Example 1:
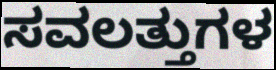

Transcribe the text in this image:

ಸವಲತ್ತುಗಳ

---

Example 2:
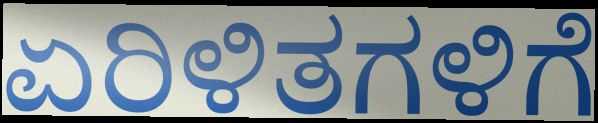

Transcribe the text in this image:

ಏರಿಳಿತಗಳಿಗೆ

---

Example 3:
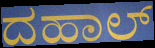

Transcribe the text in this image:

ದಹಾಲ್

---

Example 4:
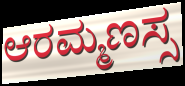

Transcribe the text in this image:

ಆರಮ್ಮಣಸ್ಸ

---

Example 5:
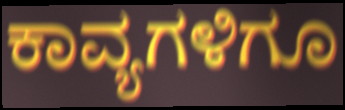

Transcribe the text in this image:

ಕಾವ್ಯಗಳಿಗೂ